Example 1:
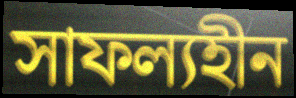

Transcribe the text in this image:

সাফল্যহীন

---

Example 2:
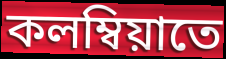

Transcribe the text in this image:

কলম্বিয়াতে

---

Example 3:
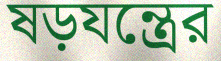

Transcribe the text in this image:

ষড়যন্ত্রের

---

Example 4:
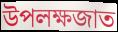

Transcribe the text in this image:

উপলক্ষজাত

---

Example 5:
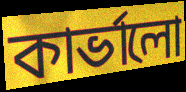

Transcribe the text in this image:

কার্ভালো